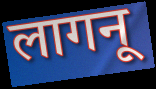
लागनू